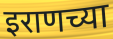
इराणच्या